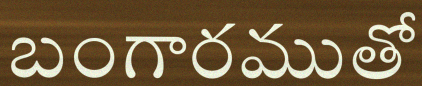
బంగారముతో